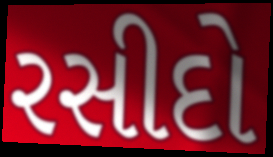
રસીદો